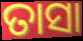
ତାସା